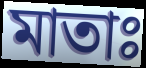
মাতাঃ